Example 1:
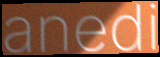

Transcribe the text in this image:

anedi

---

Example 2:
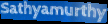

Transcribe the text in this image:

Sathyamurthy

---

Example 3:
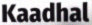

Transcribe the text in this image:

Kaadhal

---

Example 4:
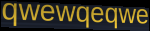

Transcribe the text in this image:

qwewqeqwe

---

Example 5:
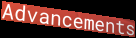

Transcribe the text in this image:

Advancements